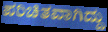
ಪರಿಚಿತವಾಗಿದ್ದು